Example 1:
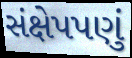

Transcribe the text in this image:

સંક્ષેપપણું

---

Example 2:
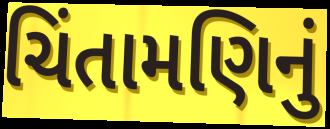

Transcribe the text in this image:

ચિંતામણિનું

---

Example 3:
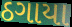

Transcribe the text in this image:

ઠગાયા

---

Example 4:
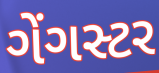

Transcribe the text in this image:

ગેંગસ્ટર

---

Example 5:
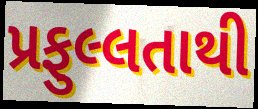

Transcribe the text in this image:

પ્રફુલ્લતાથી